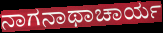
ನಾಗನಾಥಾಚಾರ್ಯ